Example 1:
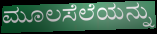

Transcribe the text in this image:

ಮೂಲಸೆಲೆಯನ್ನು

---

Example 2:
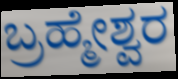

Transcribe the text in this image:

ಬ್ರಹ್ಮೇಶ್ವರ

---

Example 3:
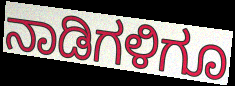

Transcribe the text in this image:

ನಾಡಿಗಳಿಗೂ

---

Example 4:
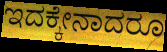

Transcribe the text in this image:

ಇದಕ್ಕೇನಾದರೂ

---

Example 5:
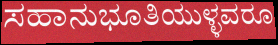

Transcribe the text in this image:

ಸಹಾನುಭೂತಿಯುಳ್ಳವರೂ